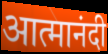
आत्मानंदी